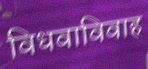
विधवाविवाह